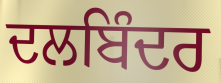
ਦਲਬਿੰਦਰ